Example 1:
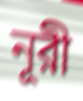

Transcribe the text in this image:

নূরী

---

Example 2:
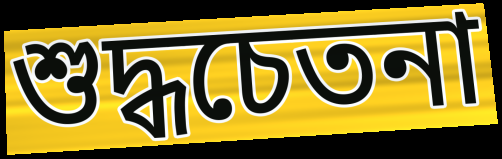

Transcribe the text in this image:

শুদ্ধচেতনা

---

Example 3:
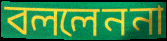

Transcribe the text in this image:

বললেননা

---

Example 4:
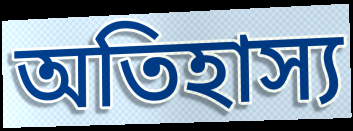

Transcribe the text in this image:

অতিহাস্য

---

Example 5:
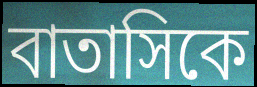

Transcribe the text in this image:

বাতাসিকে